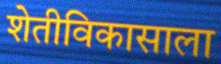
शेतीविकासाला